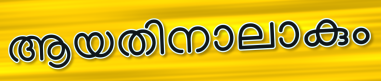
ആയതിനാലാകും